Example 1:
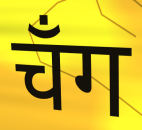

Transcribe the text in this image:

चँग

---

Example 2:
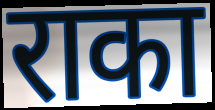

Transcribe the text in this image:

राका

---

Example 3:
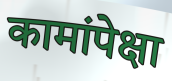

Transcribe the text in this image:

कामांपेक्षा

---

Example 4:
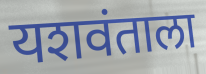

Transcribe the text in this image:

यशवंताला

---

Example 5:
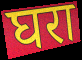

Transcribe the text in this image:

घरा